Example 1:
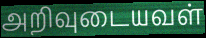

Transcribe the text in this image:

அறிவுடையவள்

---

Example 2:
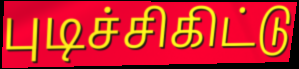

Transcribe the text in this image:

புடிச்சிகிட்டு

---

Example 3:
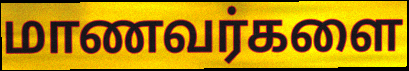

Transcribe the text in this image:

மாணவர்களை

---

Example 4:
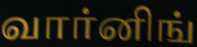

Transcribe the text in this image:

வார்னிங்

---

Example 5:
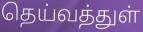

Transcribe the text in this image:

தெய்வத்துள்